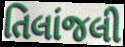
તિલાંજલી